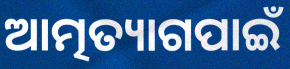
ଆତ୍ମତ୍ୟାଗପାଇଁ